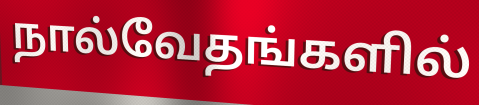
நால்வேதங்களில்